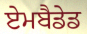
ਏਮਬੈਡੇਡ